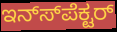
ಇನ್ಸ್‍ಪೆಕ್ಟರ್